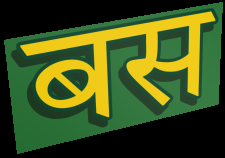
बस